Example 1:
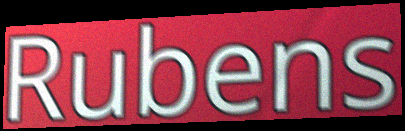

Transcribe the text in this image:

Rubens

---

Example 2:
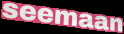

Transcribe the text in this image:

seemaan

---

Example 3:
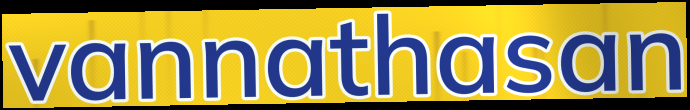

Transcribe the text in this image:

vannathasan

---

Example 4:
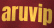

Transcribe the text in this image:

aruvip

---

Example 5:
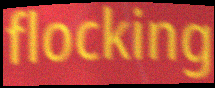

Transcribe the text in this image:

flocking